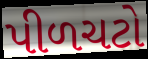
પીળચટો